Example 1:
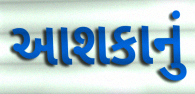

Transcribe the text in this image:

આશકાનું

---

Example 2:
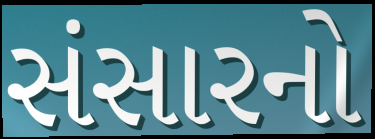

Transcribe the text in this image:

સંસારનો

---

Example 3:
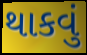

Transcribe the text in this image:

થાકવું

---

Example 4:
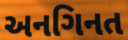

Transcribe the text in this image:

અનગિનત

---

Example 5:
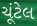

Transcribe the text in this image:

ચૂંટેલ